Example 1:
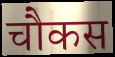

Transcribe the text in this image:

चौकस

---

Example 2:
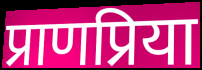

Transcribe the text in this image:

प्राणप्रिया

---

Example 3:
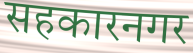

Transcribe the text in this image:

सहकारनगर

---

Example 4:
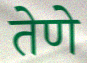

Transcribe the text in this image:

तेणे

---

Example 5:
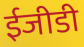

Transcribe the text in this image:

ईजीडी